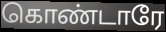
கொண்டாரே